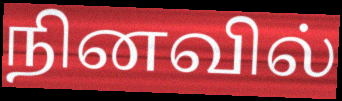
நினவில்